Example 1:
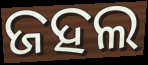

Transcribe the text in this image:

ଜହଲ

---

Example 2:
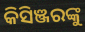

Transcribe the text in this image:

କିସିଞ୍ଜରଙ୍କୁ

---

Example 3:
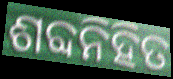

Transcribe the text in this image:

ଶବ୍ଦନିହିତ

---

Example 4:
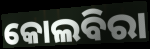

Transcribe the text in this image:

କୋଲବିରା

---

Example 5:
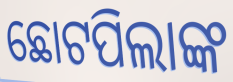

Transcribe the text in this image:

ଛୋଟପିଲାଙ୍କ